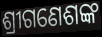
ଶ୍ରୀଗଣେଶଙ୍କ